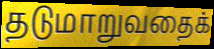
தடுமாறுவதைக்